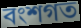
বংশগত